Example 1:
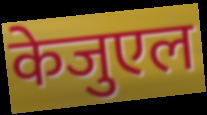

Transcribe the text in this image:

केजुएल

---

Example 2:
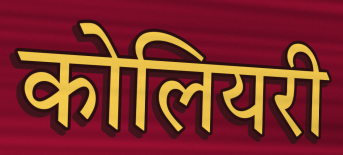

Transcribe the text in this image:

कोलियरी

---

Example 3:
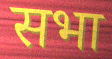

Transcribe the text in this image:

सभा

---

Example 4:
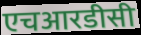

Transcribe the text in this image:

एचआरडीसी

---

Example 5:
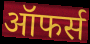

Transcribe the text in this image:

ऑफर्स